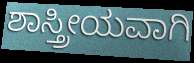
ಶಾಸ್ತ್ರೀಯವಾಗಿ